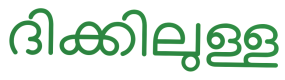
ദിക്കിലുള്ള